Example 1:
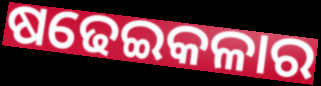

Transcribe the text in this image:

ଷଢେଇକଳାର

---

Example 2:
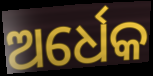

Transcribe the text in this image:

ଅର୍ଧେକ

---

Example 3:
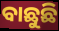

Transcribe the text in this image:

ବାଛୁଛି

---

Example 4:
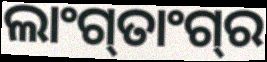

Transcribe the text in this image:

ଲାଂଗ୍‍ତାଂଗ୍‍ର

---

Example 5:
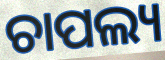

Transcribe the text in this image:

ଚାପଲ୍ୟ